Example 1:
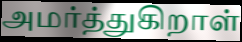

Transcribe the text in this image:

அமர்த்துகிறாள்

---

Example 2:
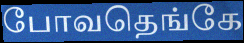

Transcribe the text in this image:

போவதெங்கே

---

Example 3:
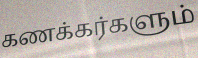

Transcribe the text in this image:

கணக்கர்களும்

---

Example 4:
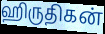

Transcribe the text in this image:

ஹிருதிகன்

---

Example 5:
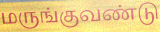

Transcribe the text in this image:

மருங்குவண்டு